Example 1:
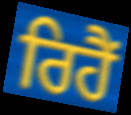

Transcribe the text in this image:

ਰਿਹੈੰ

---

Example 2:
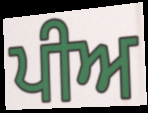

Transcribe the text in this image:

ਪੀਅ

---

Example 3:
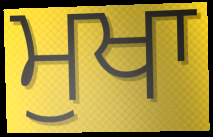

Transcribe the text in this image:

ਮੁਖਾ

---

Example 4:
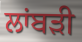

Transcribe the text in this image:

ਲਾਂਬੜੀ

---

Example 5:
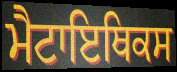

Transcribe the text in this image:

ਮੈਟਾਇਥਿਕਸ